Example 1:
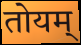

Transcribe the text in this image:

तोयम्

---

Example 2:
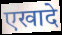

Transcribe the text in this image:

एखादे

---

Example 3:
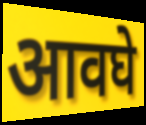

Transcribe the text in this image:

आवघे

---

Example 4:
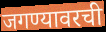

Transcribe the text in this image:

जगण्यावरची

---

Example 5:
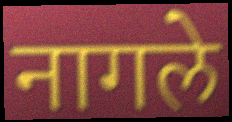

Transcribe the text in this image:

नागले